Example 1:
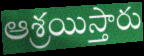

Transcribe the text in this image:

ఆశ్రయిస్తారు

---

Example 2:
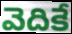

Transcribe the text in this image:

వెదికే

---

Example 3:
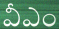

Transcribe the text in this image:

వీఎం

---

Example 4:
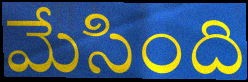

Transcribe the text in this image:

మేసింది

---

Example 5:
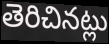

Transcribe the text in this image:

తెరిచినట్లు